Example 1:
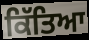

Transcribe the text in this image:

ਕਿੱਤਿਆ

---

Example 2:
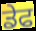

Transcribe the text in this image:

ਡੇਫ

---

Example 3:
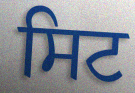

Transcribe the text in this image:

ਸਿਟ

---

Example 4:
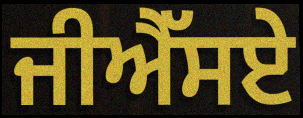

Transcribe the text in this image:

ਜੀਐੱਸਏ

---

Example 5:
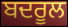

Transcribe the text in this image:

ਬਦਰੂਲ